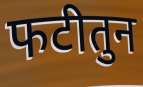
फटीतुन